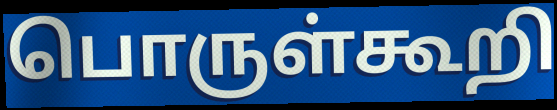
பொருள்கூறி